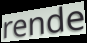
rende